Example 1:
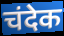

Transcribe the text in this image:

चंदेक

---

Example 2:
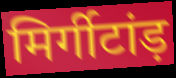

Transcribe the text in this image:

मिर्गीटांड़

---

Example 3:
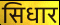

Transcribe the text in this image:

सिधार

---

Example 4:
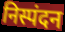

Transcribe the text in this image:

निस्पंदन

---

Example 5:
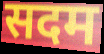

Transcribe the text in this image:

सदम